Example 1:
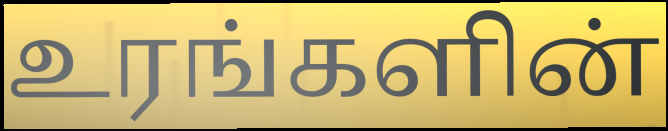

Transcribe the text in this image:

உரங்களின்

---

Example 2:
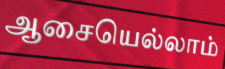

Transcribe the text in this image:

ஆசையெல்லாம்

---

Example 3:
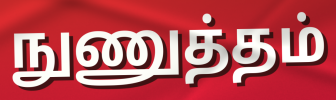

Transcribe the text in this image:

நுணுத்தம்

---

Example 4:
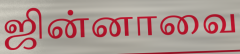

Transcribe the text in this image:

ஜின்னாவை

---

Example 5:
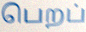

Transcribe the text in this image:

பெறப்